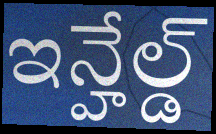
ఇన్హేల్డ్